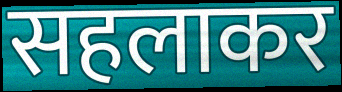
सहलाकर